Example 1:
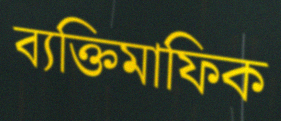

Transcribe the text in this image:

ব্যক্তিমাফিক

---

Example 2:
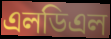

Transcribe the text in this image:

এলডিএল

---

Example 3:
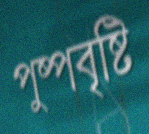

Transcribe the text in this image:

পুষ্পবৃষ্টি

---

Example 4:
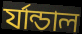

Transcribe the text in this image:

র্যান্ডাল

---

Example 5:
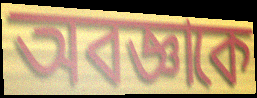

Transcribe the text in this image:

অবজ্ঞাকে